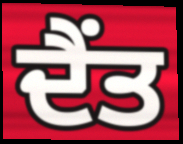
ਦੈਂਤ